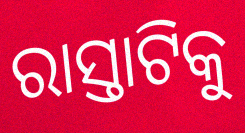
ରାସ୍ତାଟିକୁ